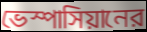
ভেস্পাসিয়ানের